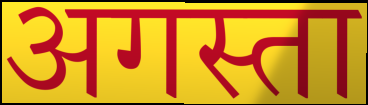
अगस्ता